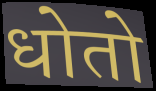
धोतो